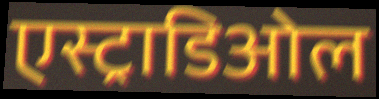
एस्ट्राडिओल